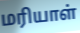
மரியாள்